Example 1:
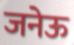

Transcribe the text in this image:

जनेऊ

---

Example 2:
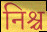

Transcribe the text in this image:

निश्च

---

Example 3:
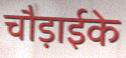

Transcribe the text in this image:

चौड़ाईके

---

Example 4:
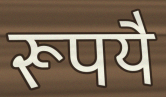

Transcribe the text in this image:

रूपयै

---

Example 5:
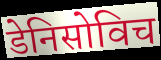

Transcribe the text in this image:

डेनिसोविच